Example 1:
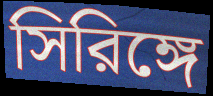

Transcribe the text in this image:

সিরিঙ্গে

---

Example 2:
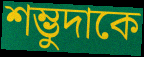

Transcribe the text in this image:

শম্ভুদাকে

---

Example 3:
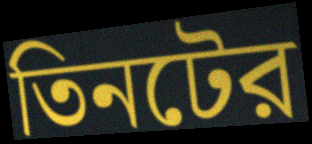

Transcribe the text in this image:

তিনটের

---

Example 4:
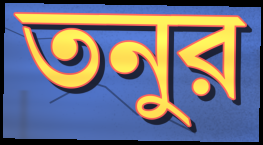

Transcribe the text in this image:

তনুর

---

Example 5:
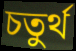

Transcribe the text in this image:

চতুর্থ